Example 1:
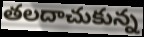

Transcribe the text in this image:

తలదాచుకున్న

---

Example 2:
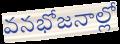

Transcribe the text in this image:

వనభోజనాల్లో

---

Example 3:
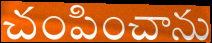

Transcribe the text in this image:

చంపించాను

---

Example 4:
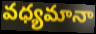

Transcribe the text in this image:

వధ్యమానా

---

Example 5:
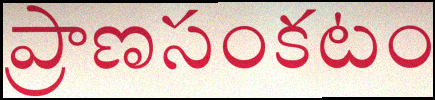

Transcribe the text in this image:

ప్రాణసంకటం